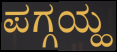
ಪಗ್ಗಯ್ಹ